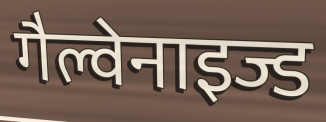
गैल्वेनाइज्ड